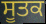
ਸੂਤਕ